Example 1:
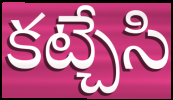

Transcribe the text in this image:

కట్చేసి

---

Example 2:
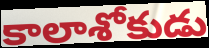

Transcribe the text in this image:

కాలాశోకుడు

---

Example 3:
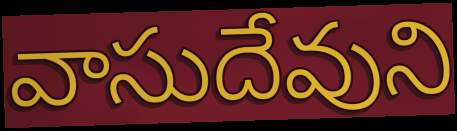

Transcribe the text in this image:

వాసుదేవుని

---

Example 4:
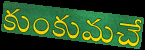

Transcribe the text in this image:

కుంకుమచే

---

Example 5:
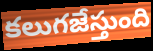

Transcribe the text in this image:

కలుగజేస్తుంది